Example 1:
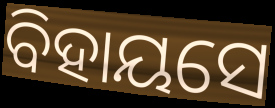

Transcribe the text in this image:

ବିହାୟସେ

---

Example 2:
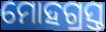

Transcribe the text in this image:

ମୋହଗ୍ରସ୍ତ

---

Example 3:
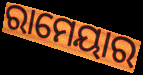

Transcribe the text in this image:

ରାମେୟାର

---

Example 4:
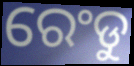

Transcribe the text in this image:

ରେଂଡୁ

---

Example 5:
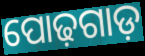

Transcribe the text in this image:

ପୋଢ଼ଗାଡ଼